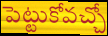
పెట్టుకోవచ్చో